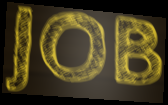
JOB